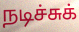
நடிச்சுக்